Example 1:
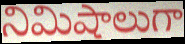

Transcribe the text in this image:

నిమిషాలుగా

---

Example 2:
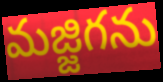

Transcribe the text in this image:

మజ్జిగను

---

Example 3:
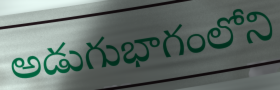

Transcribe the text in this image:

అడుగుభాగంలోని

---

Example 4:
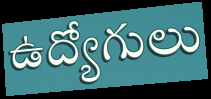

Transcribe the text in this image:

ఉద్యోగులు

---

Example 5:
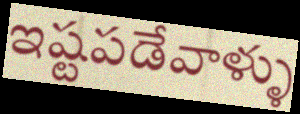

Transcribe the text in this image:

ఇష్టపడేవాళ్ళు